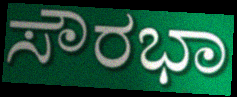
ಸೌರಭಾ